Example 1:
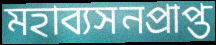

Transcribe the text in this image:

মহাব্যসনপ্রাপ্ত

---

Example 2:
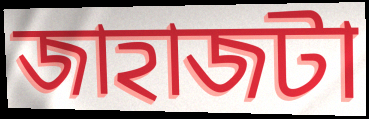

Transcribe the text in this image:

জাহাজটা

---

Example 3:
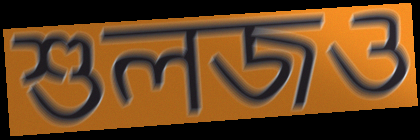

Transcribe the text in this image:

শুলজও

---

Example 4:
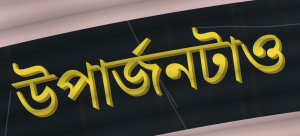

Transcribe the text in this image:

উপার্জনটাও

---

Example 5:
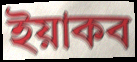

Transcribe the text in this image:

ইয়াকব